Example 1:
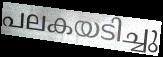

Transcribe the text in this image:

പലകയടിച്ചു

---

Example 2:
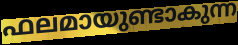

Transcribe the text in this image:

ഫലമായുണ്ടാകുന്ന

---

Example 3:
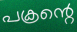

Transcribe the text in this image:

പക്രന്റെ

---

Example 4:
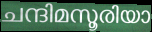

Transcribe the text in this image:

ചന്ദിമസൂരിയാ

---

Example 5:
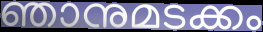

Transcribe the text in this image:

ഞാനുമടക്കം